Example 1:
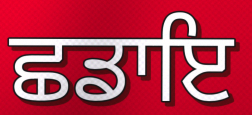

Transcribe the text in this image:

ਛਡਾਇ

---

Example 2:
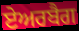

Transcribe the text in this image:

ਏਅਰਬੈਗ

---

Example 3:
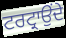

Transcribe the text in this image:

ਟਰਟ੍ਰਾਉਂਦੇ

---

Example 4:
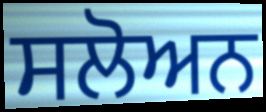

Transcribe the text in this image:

ਸਲੋਅਨ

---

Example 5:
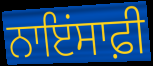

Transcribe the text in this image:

ਨਾਇਂਸਾਫ਼ੀ